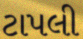
ટાપલી